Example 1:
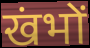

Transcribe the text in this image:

खंभों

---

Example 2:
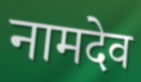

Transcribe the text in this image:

नामदेव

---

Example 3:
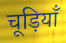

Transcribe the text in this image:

चूड़ियाँ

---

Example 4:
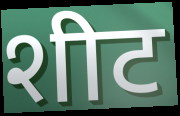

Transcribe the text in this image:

शीट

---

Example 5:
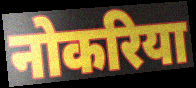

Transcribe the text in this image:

नोकरिया